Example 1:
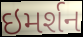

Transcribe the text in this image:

ઇમર્શન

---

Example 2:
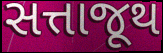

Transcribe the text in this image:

સત્તાજૂથ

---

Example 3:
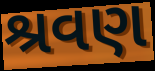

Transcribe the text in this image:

શ્રવણ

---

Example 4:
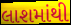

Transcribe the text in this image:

લાશમાંથી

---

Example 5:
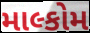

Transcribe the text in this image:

માલ્કોમ